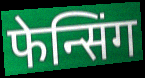
फेन्सिंग